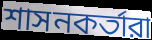
শাসনকর্তারা